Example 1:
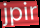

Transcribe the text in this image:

jpir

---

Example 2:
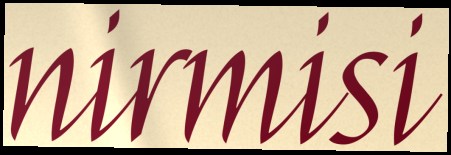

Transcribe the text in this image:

nirmisi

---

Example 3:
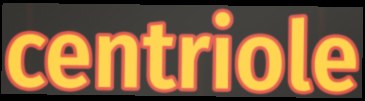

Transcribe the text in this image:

centriole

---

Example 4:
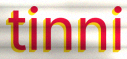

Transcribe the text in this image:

tinni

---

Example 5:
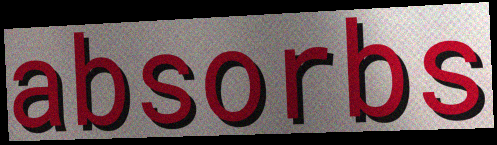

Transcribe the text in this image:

absorbs